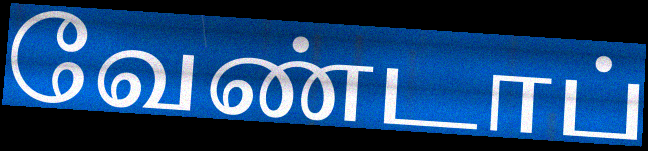
வேண்டாப்